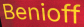
Benioff